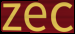
zec